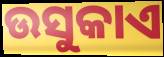
ଉସୁକାଏ